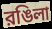
রঙিলা